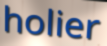
holier